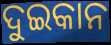
ଦୁଇକାନ